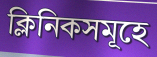
ক্লিনিকসমূহে